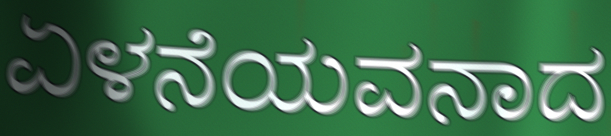
ಏಳನೆಯವನಾದ